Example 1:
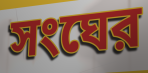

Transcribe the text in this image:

সংঘের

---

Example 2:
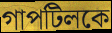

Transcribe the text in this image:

গাপটিলকে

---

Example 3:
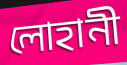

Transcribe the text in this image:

লোহানী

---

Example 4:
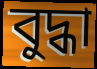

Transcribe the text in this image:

বুদ্ধা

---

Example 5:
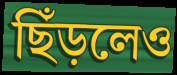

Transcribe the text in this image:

ছিঁড়লেও